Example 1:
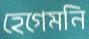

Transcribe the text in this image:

হেগেমনি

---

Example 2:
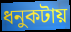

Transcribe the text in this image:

ধনুকটায়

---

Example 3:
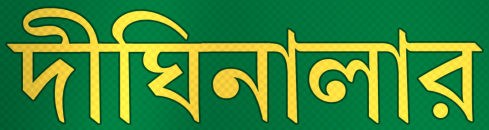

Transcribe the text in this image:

দীঘিনালার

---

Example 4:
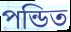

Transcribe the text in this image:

পন্ডিত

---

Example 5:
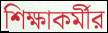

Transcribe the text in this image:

শিক্ষাকর্মীর